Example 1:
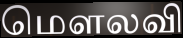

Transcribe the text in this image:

மௌலவி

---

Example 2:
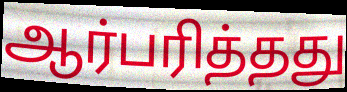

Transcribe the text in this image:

ஆர்பரித்தது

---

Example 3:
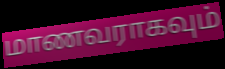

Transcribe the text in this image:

மாணவராகவும்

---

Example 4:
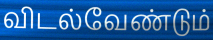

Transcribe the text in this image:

விடல்வேண்டும்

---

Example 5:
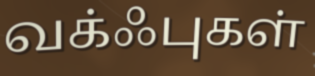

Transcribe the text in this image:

வக்ஃபுகள்